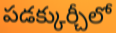
పడక్కుర్చీలో